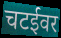
चटईवर